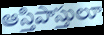
ఆస్తిపాస్తులూ